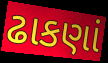
ઢાકણાં